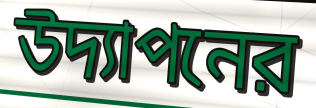
উদ্যাপনের